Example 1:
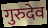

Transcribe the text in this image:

गुरुदेव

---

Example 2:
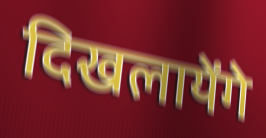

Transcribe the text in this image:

दिखलायेंगे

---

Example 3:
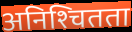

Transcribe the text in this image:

अनिश्चितता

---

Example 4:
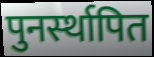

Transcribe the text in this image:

पुनर्स्‍थापित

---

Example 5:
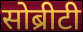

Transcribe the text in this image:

सोब्रीटी